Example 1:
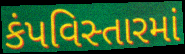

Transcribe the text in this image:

કંપવિસ્તારમાં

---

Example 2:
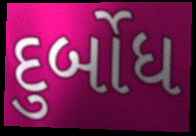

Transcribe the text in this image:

દુર્બોધ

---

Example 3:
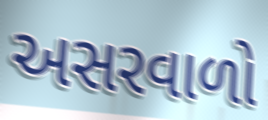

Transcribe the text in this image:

અસરવાળો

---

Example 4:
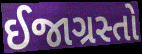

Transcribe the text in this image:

ઈજાગ્રસ્તો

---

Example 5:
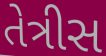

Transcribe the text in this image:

તેત્રીસ